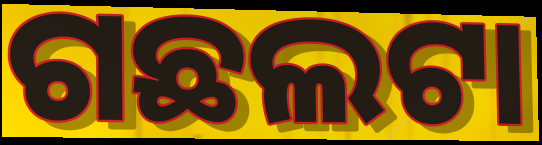
ଗଛଲଟା